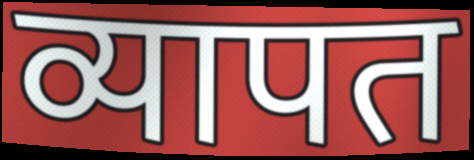
व्यापत